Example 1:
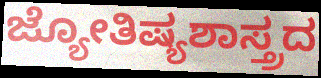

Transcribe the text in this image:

ಜ್ಯೋತಿಷ್ಯಶಾಸ್ತ್ರದ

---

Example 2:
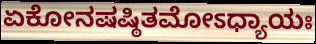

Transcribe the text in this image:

ಏಕೋನಷಷ್ಠಿತಮೋಽಧ್ಯಾಯಃ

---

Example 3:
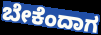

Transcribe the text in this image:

ಬೇಕೆಂದಾಗ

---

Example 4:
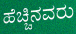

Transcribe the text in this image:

ಹೆಚ್ಚಿನವರು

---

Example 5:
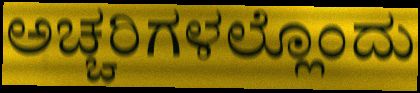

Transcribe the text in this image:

ಅಚ್ಚರಿಗಳಲ್ಲೊಂದು